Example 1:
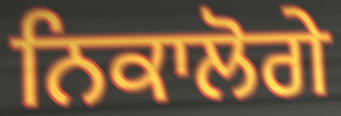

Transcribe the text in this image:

ਨਿਕਾਲੋਗੇ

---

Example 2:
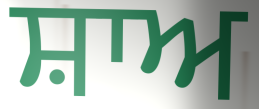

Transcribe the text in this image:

ਸ਼ਾਅ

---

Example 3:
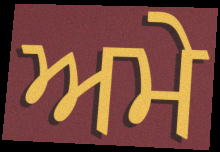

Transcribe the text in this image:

ਅਮੇ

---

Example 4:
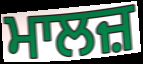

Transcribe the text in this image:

ਮਾਲਜ਼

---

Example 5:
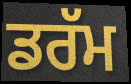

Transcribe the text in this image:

ਡਰੱਮ